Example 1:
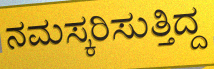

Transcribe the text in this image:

ನಮಸ್ಕರಿಸುತ್ತಿದ್ದ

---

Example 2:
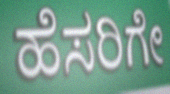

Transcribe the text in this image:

ಹೆಸರಿಗೇ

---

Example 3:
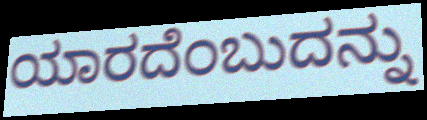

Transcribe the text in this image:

ಯಾರದೆಂಬುದನ್ನು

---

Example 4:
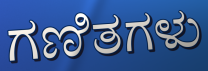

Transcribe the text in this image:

ಗಣಿತಗಳು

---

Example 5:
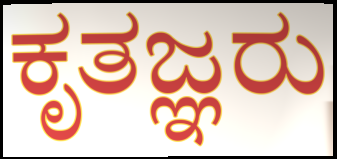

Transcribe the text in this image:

ಕೃತಜ್ಞರು